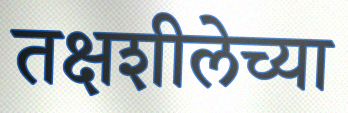
तक्षशीलेच्या